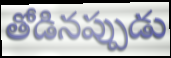
తోడినప్పుడు